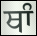
ਥਾੰ